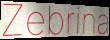
Zebrina